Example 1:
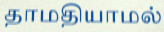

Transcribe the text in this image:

தாமதியாமல்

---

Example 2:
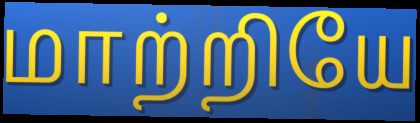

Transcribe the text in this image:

மாற்றியே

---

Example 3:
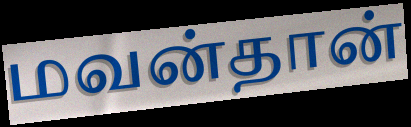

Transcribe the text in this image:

மவன்தான்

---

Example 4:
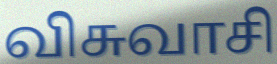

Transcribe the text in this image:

விசுவாசி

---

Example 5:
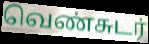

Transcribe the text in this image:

வெண்சுடர்